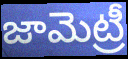
జామెట్రీ